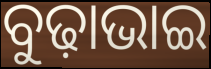
ବୁଢ଼ାଭାଇ